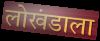
लोखंडाला